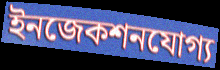
ইনজেকশনযোগ্য